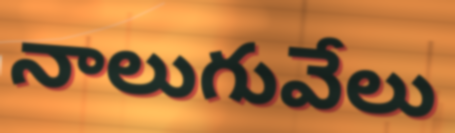
నాలుగువేలు